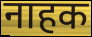
नाहक